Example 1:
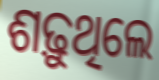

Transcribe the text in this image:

ଶଢ଼ୁଥିଲେ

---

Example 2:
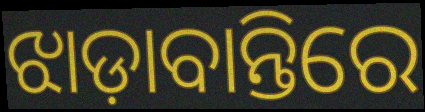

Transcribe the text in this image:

ଝାଡ଼ାବାନ୍ତିରେ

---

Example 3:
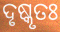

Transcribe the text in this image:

ଦୃଷ୍କୃତଃ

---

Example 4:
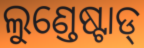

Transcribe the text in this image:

ଲୁଣ୍ଡେଷ୍ଟାଡ୍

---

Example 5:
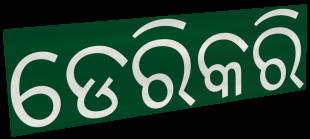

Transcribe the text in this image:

ଡେରିକରି